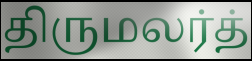
திருமலர்த்